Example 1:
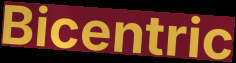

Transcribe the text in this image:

Bicentric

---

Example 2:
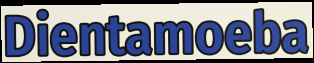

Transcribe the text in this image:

Dientamoeba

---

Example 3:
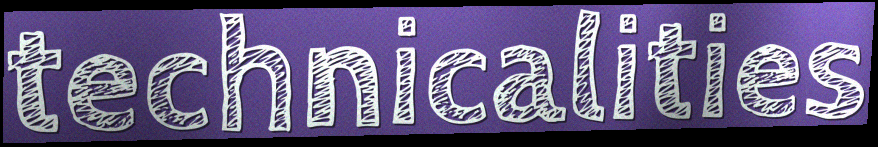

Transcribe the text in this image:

technicalities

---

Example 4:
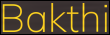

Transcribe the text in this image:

Bakthi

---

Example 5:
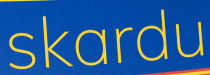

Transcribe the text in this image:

skardu